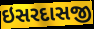
ઇસરદાસજી